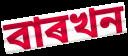
বাৰখন